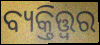
ବ୍ୟକ୍ତିତ୍ତ୍ଵର